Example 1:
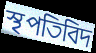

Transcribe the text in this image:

স্থপতিবিদ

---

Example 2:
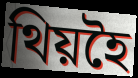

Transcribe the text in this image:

থিয়হৈ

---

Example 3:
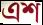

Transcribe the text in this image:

এশ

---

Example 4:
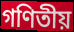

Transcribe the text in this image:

গণিতীয়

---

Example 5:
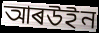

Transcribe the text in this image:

আৰউইন